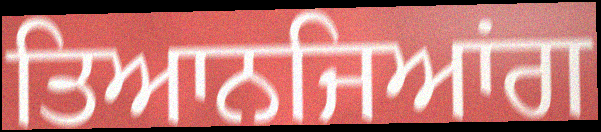
ਤਿਆਨਜਿਆਂਗ